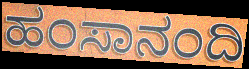
ಹಂಸಾನಂದಿ